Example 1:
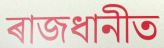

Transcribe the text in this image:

ৰাজধানীত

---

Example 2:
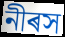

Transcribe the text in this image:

নীৰস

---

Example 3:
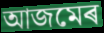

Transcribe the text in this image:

আজমেৰ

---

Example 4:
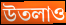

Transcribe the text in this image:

উতলাও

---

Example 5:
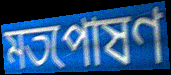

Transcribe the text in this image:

মতপোষণ